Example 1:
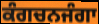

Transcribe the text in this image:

ਕੰਗਚਨਜੰਗਾ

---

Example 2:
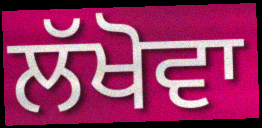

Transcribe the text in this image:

ਲੱਖੋਵਾ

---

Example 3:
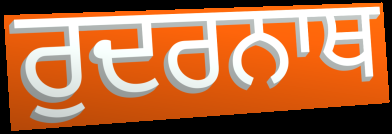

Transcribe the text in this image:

ਰੁਦਰਨਾਥ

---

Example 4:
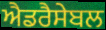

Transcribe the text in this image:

ਐਡਰੈਸੇਬਲ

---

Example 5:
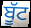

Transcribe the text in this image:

ਬੂੱਟ